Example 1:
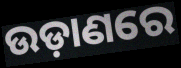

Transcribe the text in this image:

ଉଡ଼ାଣରେ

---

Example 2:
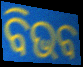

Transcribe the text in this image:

ବିଭବ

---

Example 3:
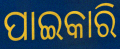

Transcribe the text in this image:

ପାଇକାରି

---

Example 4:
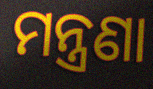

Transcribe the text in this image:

ମନ୍ତ୍ରଣା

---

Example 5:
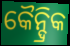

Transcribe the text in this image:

କୈନ୍ଦ୍ରିକ